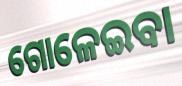
ଗୋଳେଇବା